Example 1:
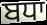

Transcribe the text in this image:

ਬਧਾ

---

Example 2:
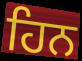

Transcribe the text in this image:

ਹਿਨ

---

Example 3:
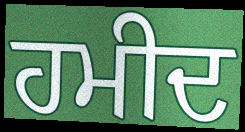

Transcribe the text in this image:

ਹਮੀਦ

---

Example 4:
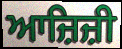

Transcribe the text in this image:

ਆਜ਼ਿਜ਼ੀ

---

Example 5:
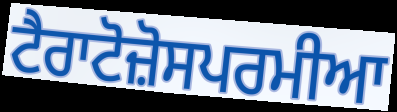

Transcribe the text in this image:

ਟੈਰਾਟੋਜ਼ੋਸਪਰਮੀਆ